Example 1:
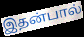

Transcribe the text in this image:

இதன்பால்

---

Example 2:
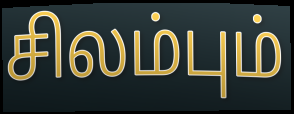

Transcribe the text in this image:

சிலம்பும்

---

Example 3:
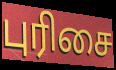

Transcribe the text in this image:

புரிசை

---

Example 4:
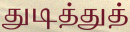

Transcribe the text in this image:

துடித்துத்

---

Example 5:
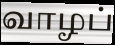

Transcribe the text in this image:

வாழப்